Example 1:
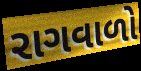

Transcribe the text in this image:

રાગવાળો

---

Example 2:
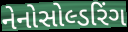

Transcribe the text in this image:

નેનોસોલ્ડરિંગ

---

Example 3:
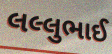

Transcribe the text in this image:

લલ્લુભાઈ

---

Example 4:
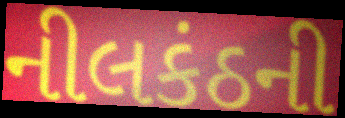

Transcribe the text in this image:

નીલકંઠની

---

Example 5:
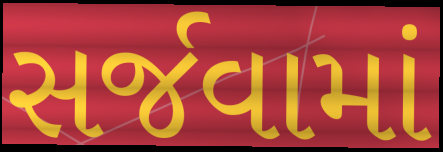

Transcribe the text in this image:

સર્જવામાં